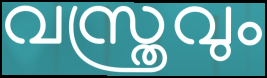
വസ്ത്രവും